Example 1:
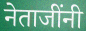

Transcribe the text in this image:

नेताजींनी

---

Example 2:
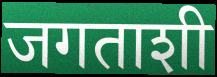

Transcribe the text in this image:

जगताशी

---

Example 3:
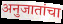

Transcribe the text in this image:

अनुजातांचा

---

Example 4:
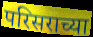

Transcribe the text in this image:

परिसराच्या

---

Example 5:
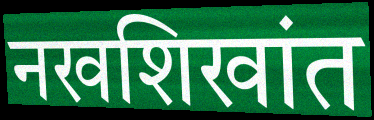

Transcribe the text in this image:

नखशिखांत